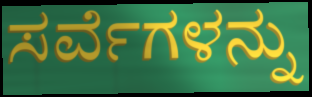
ಸರ್ವೆಗಳನ್ನು